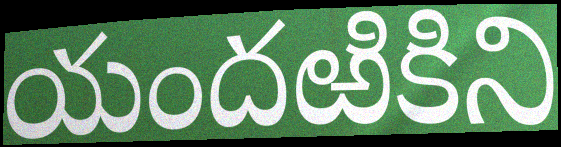
యందఱికిని